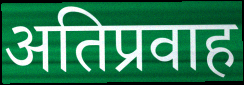
अतिप्रवाह